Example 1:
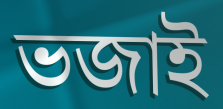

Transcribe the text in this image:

ভজাই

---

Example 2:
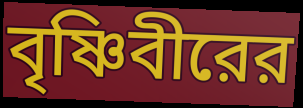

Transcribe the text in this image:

বৃষ্ণিবীরের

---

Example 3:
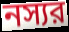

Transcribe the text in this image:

নস্যর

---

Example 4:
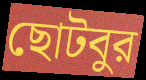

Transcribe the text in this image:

ছোটবুর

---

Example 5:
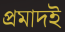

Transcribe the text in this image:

প্রমাদই